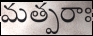
మత్పరాః